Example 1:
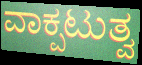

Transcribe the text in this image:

ವಾಕ್ಪಟುತ್ವ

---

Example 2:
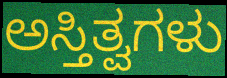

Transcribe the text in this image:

ಅಸ್ತಿತ್ವಗಳು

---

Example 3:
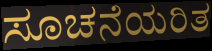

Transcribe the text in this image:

ಸೂಚನೆಯರಿತ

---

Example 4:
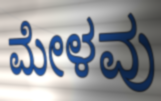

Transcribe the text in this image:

ಮೇಳವು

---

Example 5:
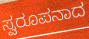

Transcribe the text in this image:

ಸ್ವರೂಪನಾದ